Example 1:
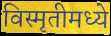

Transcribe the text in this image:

विस्मृतीमध्ये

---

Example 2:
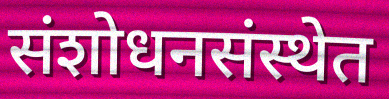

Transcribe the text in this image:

संशोधनसंस्थेत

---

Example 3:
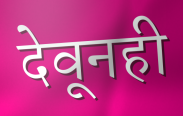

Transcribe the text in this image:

देवूनही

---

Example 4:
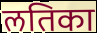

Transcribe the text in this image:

लतिका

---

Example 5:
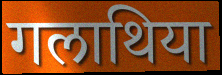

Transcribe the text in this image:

गलाथिया